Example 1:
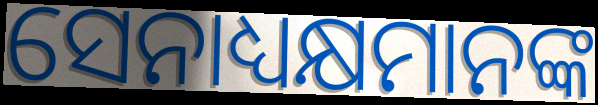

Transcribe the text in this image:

ସେନାଧ୍ୟକ୍ଷମାନଙ୍କ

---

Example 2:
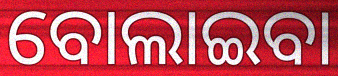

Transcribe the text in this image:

ବୋଲାଇବା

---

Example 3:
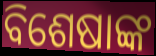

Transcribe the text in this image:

ବିଶେଷାଙ୍କ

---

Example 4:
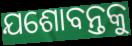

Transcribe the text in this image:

ଯଶୋବନ୍ତକୁ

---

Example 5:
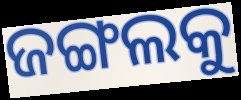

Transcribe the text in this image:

ଜଙ୍ଗଲକୁ